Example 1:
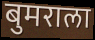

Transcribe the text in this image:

बुमराला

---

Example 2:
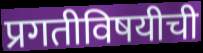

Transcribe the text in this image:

प्रगतीविषयीची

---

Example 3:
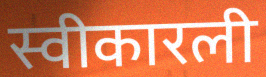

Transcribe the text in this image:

स्वीकारली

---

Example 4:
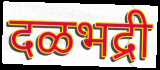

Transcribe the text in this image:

दळभद्री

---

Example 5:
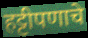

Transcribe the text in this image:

हट्टीपणाचे